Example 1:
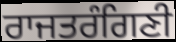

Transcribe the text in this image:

ਰਾਜਤਰੰਗਿਣੀ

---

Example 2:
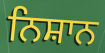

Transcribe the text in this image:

ਨਿਸ਼ਾਨ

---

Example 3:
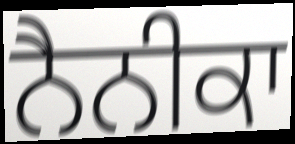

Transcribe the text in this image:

ਨੈਨੀਕਾ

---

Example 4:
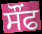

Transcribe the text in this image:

ਸੌਂਫ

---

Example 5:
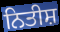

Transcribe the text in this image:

ਨਿਤੀਸ਼